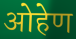
ओहेण